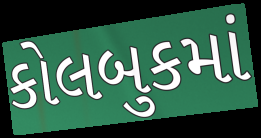
કોલબુકમાં